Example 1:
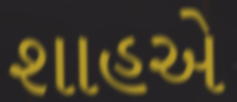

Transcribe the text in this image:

શાહએ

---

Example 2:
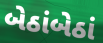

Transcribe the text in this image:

બેઠાંબેઠાં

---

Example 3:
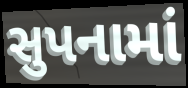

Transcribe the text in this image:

સુપનામાં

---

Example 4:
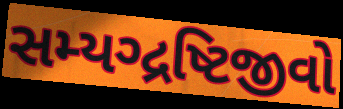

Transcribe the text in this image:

સમ્યગ્દ્રષ્ટિજીવો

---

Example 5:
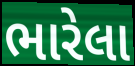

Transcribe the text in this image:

ભારેલા